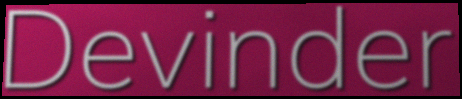
Devinder